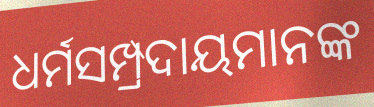
ଧର୍ମସମ୍ପ୍ରଦାୟମାନଙ୍କ